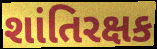
શાંતિરક્ષક